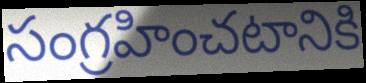
సంగ్రహించటానికి